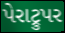
પેરાટ્રુપર